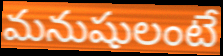
మనుషులంటే